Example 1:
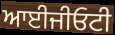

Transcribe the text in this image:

ਆਈਜੀਓਟੀ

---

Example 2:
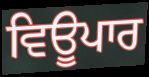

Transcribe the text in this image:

ਵਿਊਪਾਰ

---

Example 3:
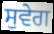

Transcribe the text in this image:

ਸੁਵੇਗ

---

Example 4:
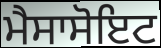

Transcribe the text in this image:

ਮੈਸਾਸੋਇਟ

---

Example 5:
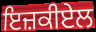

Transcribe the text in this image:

ਇਜ਼ਕੀਏਲ